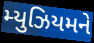
મ્યુઝિયમને